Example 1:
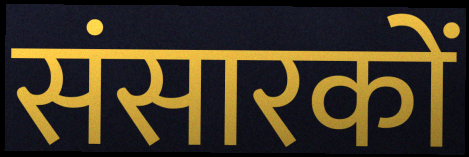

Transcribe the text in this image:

संसारकों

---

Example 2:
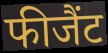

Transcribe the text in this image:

फीजैंट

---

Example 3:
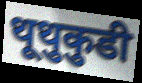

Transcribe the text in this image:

थूथुकुडी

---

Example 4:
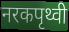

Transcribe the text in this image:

नरकपृथ्वी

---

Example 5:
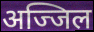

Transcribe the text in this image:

अज्जिल